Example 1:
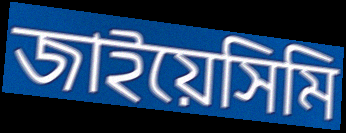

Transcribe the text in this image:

জাইয়েসিমি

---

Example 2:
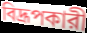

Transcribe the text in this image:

বিদ্রূপকারী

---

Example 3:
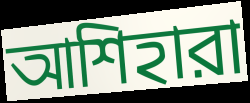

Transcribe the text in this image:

আশিহারা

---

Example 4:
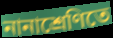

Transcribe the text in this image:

নানাশ্রেণিতে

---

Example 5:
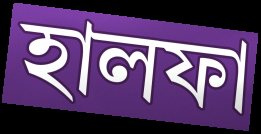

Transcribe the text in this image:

হালফা